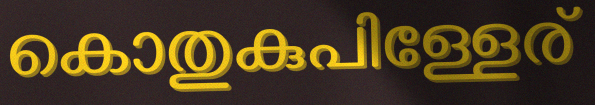
കൊതുകുപിള്ളേര്